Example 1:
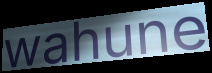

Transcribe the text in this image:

wahune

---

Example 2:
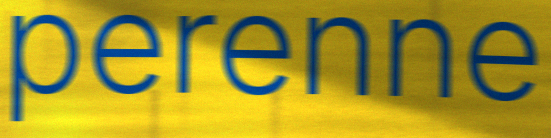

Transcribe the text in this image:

perenne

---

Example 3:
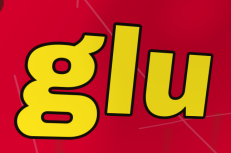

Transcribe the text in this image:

glu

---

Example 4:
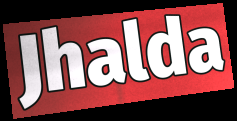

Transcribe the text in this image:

Jhalda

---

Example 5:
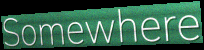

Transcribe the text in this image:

Somewhere